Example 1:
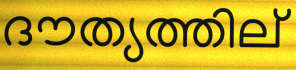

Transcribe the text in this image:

ദൗത്യത്തില്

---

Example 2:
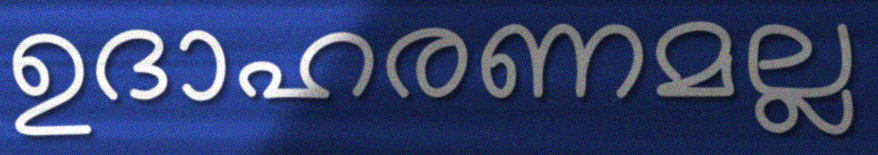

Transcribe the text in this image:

ഉദാഹരണമല്ല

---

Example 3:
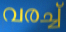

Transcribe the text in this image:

വരച്ച്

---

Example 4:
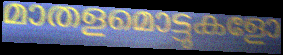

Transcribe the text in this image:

മാതളമൊട്ടുകളോ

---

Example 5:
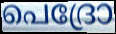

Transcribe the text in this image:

പെദ്രോ